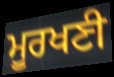
ਮੂਰਖਣੀ